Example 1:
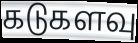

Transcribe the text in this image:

கடுகளவு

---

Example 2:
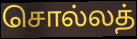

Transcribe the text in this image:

சொல்லத்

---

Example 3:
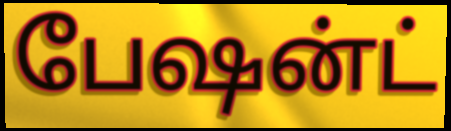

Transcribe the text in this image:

பேஷன்ட்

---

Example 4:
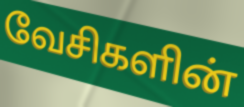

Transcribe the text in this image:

வேசிகளின்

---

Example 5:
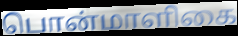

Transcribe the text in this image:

பொன்மாளிகை